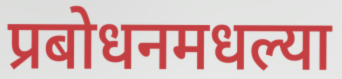
प्रबोधनमधल्या